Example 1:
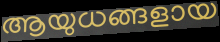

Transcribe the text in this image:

ആയുധങ്ങളായ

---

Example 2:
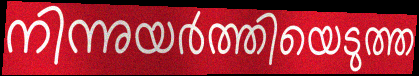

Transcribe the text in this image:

നിന്നുയർത്തിയെടുത്ത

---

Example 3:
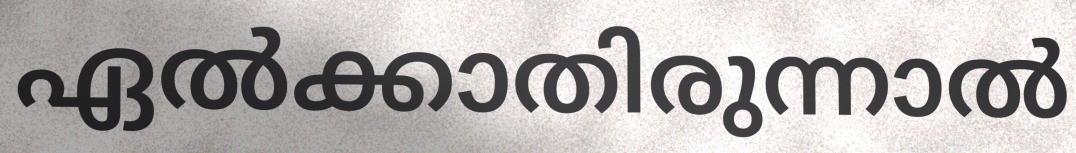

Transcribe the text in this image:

ഏൽക്കാതിരുന്നാൽ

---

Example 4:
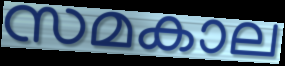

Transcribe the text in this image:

സമകാല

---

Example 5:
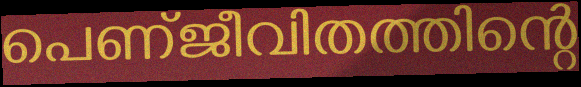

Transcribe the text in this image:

പെണ്ജീവിതത്തിന്റെ